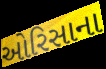
ઓરિસાના